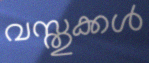
വസ്തുക്കൾ